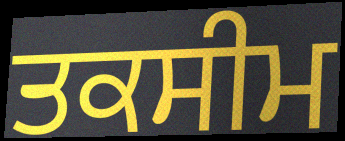
ਤਕਸੀਮ